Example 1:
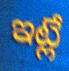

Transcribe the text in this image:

ఇట్లే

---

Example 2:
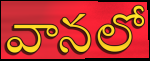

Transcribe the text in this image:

వానలో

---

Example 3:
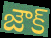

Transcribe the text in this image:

జౌక్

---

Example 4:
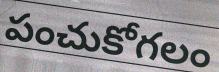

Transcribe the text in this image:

పంచుకోగలం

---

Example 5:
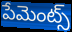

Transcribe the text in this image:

పేమెంట్స్